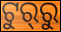
ଟୁର୍‍ରୁ